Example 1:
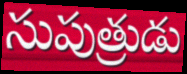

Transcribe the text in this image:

సుపుత్రుడు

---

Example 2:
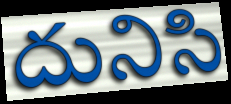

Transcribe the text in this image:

దునిసి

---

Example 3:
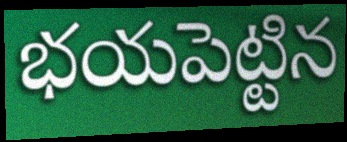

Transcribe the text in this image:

భయపెట్టిన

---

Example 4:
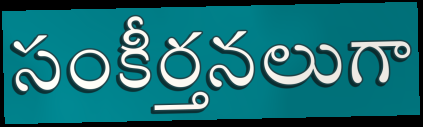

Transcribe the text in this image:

సంకీర్తనలుగా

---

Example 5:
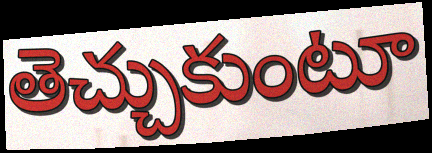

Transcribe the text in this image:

తెచ్చుకుంటూ